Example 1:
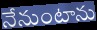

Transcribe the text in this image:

నేనుంటాను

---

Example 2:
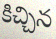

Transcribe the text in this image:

కిచ్చిన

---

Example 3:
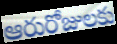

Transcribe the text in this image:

ఆరురోజులకు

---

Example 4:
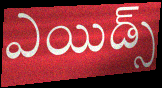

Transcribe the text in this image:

ఎయిడ్స్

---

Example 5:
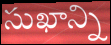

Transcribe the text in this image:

సుఖాన్ని